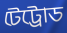
টেট্রোড